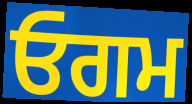
ਓਗਮ